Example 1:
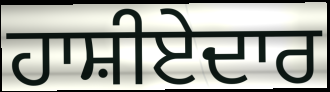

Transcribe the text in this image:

ਹਾਸ਼ੀਏਦਾਰ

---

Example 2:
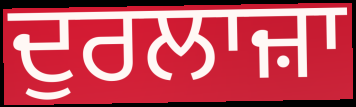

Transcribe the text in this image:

ਦੁਰਲਾਜ਼ਾ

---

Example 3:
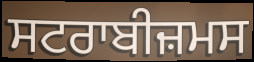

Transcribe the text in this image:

ਸਟਰਾਬੀਜ਼ਮਸ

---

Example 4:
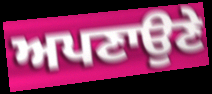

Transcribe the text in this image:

ਅਪਣਾਉਣੇ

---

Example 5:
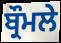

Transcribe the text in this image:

ਬ੍ਰੌਮਲੇ